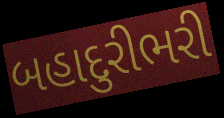
બહાદુરીભરી